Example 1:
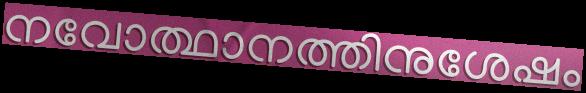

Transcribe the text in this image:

നവോത്ഥാനത്തിനുശേഷം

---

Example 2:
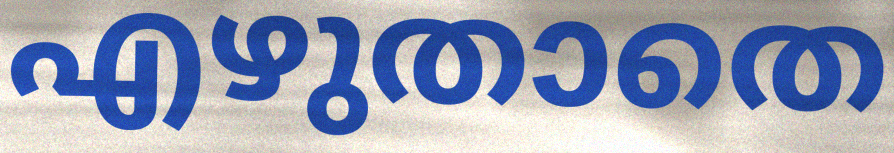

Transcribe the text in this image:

എഴുതാതെ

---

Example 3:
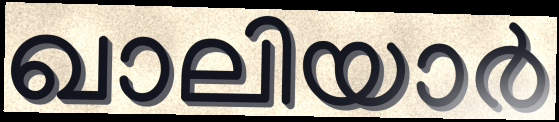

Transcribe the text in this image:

ഖാലിയാർ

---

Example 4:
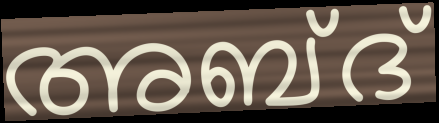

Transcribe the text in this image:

അബ്ദ്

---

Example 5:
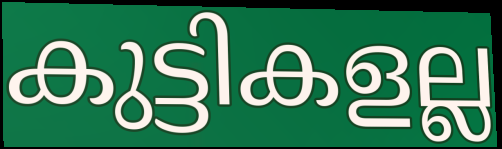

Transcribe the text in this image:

കുട്ടികളല്ല